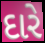
દારે